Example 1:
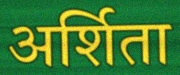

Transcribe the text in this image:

अर्शिता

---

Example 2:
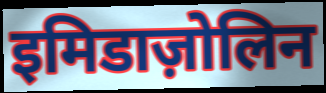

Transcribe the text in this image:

इमिडाज़ोलिन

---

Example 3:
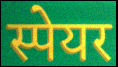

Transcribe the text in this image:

स्पेयर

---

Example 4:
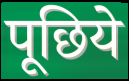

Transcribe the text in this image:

पूछिये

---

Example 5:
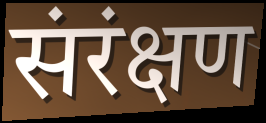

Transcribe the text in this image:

संरंक्षण